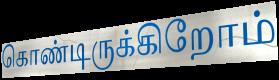
கொண்டிருக்கிறோம்